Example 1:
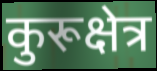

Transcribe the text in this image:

कुरूक्षेत्र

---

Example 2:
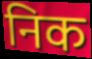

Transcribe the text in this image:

निक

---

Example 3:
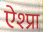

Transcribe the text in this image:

ऐश्प्रा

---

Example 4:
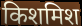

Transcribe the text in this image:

किशमिश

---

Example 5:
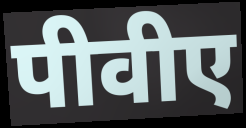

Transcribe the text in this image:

पीवीए